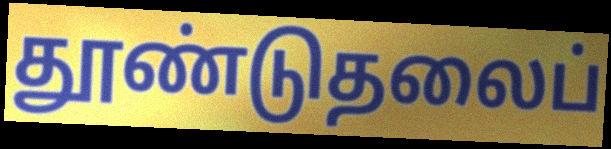
தூண்டுதலைப்